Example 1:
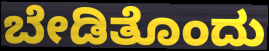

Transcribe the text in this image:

ಬೇಡಿತೊಂದು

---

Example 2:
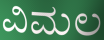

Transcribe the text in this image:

ವಿಮಲ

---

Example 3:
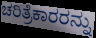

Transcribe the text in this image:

ಚರಿತ್ರೆಕಾರರನ್ನು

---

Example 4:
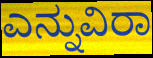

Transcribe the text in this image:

ಎನ್ನುವಿರಾ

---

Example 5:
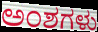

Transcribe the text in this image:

ಅಂಶಗಳು